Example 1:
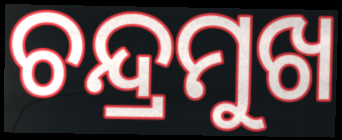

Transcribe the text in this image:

ଚନ୍ଦ୍ରମୁଖ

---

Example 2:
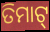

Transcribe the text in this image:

ତିମାଟ୍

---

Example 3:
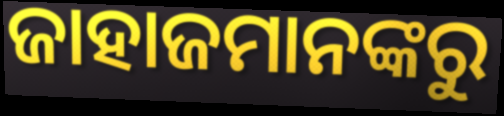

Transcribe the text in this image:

ଜାହାଜମାନଙ୍କରୁ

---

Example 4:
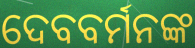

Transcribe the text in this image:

ଦେବବର୍ମନଙ୍କ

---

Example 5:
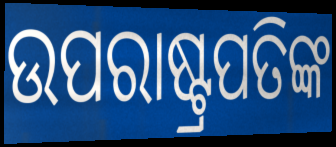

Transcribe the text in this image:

ଉପରାଷ୍ଟ୍ରପତିଙ୍କ